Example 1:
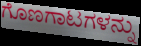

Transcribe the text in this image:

ಗೊಣಗಾಟಗಳನ್ನು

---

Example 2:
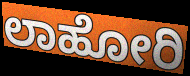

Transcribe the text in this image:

ಲಾಹೋರಿ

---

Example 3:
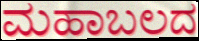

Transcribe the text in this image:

ಮಹಾಬಲದ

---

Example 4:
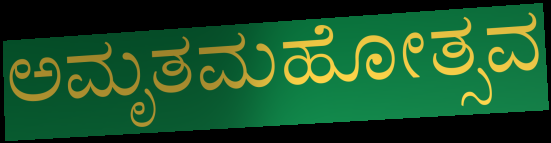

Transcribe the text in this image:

ಅಮೃತಮಹೋತ್ಸವ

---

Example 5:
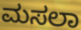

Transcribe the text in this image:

ಮಸಲಾ